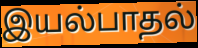
இயல்பாதல்